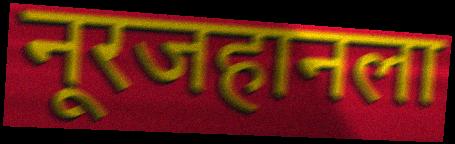
नूरजहानला